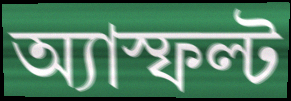
অ্যাস্ফল্ট